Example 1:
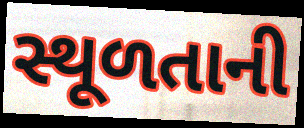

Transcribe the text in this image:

સ્થૂળતાની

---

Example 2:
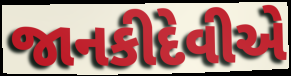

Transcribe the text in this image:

જાનકીદેવીએ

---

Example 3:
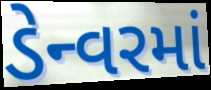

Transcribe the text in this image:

ડેન્વરમાં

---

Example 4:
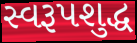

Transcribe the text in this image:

સ્વરૂપશુદ્ધ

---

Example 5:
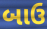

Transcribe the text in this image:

બાઉ